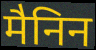
मैनिन